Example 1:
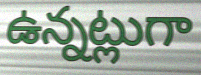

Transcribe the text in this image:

ఉన్నట్లుగా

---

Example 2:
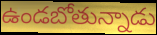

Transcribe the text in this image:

ఉండబోతున్నాడు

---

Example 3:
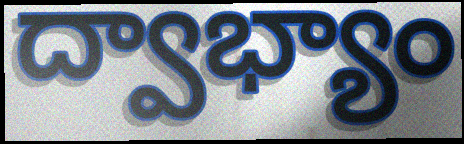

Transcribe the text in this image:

ద్వాభ్యాం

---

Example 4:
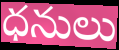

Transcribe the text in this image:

ధనులు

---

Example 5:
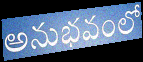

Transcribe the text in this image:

అనుభవంలో